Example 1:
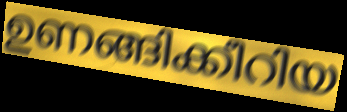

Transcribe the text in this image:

ഉണങ്ങിക്കീറിയ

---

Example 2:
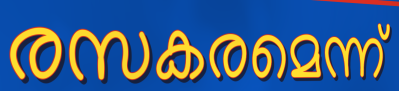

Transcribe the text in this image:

രസകരമെന്ന്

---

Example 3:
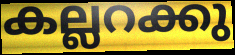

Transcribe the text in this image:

കല്ലറക്കു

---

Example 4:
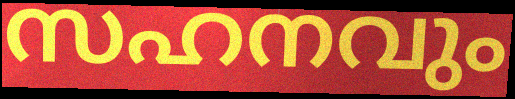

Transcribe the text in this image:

സഹനവും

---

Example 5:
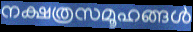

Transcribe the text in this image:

നക്ഷത്രസമൂഹങ്ങൾ